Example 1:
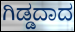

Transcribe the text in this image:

ಗಿಡ್ಡದಾದ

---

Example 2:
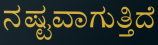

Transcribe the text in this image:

ನಷ್ಟವಾಗುತ್ತಿದೆ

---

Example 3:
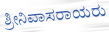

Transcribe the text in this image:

ಶ್ರೀನಿವಾಸರಾಯರು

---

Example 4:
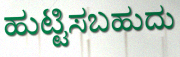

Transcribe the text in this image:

ಹುಟ್ಟಿಸಬಹುದು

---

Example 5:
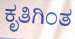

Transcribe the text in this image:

ಕೃತಿಗಿಂತ